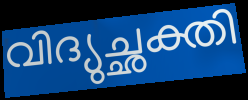
വിദ്യുച്ഛക്തി